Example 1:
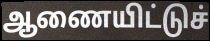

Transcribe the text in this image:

ஆணையிட்டுச்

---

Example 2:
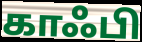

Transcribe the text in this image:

காஃபி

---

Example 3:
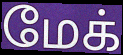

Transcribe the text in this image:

மேக்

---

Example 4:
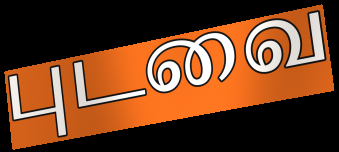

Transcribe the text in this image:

புடவை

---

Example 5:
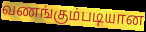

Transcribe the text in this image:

வணங்கும்படியான